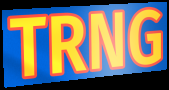
TRNG